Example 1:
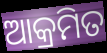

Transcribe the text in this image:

ଆକ୍ରମିତ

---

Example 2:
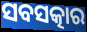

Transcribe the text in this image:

ସବସତ୍କାର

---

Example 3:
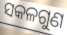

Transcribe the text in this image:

ସକଳଗୁଣ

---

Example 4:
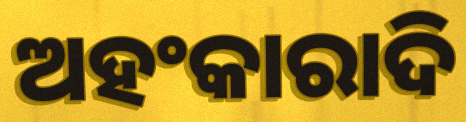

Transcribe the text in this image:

ଅହଂକାରାଦି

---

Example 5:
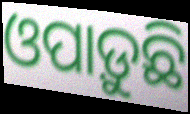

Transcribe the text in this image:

ଓପାଡ଼ୁଛି